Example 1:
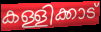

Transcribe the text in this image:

കള്ളിക്കാട്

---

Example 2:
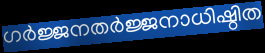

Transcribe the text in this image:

ഗർജ്ജനതർജ്ജനാധിഷ്ഠിത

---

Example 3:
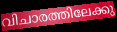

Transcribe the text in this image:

വിചാരത്തിലേക്കു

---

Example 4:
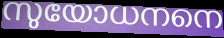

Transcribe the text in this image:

സുയോധനനെ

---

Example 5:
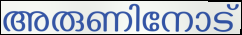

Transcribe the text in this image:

അരുണിനോട്